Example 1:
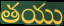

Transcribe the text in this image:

తయు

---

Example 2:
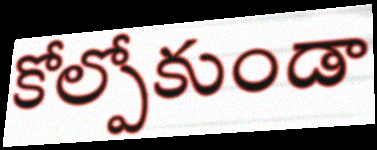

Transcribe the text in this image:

కోల్పోకుండా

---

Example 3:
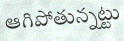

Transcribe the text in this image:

ఆగిపోతున్నట్టు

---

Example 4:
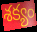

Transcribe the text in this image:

శక్యం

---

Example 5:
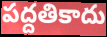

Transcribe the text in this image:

పద్దతికాదు